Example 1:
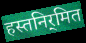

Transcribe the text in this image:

हस्तनिर्मित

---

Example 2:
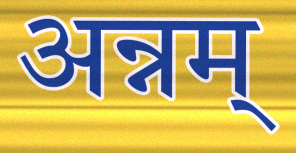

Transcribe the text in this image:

अन्नम्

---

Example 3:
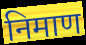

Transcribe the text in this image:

निमाण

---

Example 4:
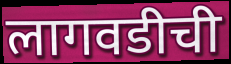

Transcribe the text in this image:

लागवडीची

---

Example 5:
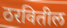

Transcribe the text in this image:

ठरवितील